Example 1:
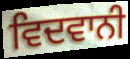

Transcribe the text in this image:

ਵਿਦਵਾਨੀ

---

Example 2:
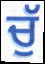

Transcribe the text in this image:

ਚੁੱ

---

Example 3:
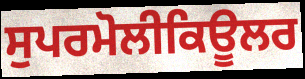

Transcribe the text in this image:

ਸੁਪਰਮੋਲੀਕਿਊਲਰ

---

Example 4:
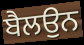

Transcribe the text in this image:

ਬੈਲਉਨ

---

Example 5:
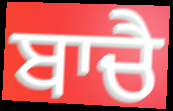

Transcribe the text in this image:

ਬਾਚੈ